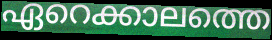
ഏറെക്കാലത്തെ